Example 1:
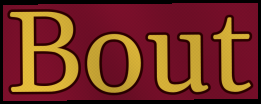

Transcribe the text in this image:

Bout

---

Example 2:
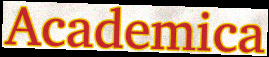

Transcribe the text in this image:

Academica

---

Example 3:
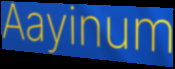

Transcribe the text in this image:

Aayinum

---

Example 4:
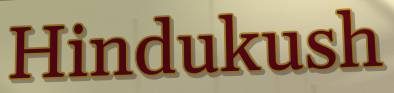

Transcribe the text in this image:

Hindukush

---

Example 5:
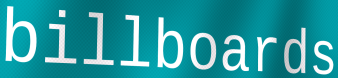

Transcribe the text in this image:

billboards